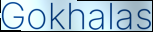
Gokhalas